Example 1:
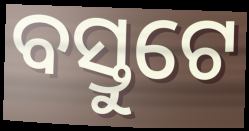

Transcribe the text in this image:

ବସ୍ତୁଟେ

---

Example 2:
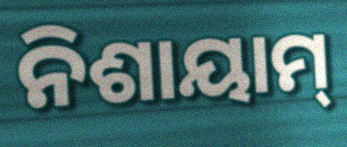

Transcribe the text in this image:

ନିଶାୟାମ୍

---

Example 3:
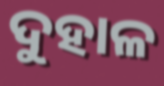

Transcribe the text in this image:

ଦୁହାଳ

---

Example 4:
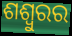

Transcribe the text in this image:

ଶଶ୍ୱୁରର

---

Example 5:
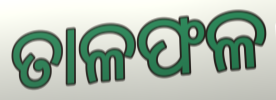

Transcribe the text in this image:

ତାଳଫଳ